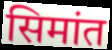
सिमांत